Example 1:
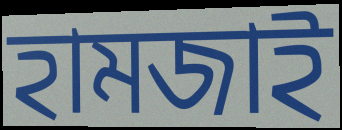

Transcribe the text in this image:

হামজাই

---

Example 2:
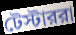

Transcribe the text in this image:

টেস্টাররা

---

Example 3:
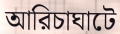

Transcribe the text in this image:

আরিচাঘাটে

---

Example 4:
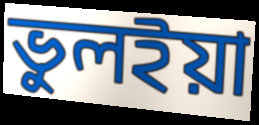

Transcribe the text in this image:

ভুলইয়া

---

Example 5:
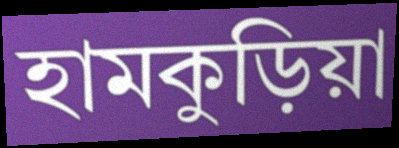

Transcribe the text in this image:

হামকুড়িয়া